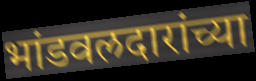
भांडवलदारांच्या